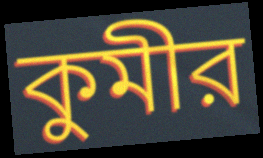
কুমীর